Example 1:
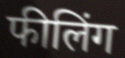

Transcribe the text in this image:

फीलिंग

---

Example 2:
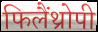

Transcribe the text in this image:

फिलैंथ्रोपी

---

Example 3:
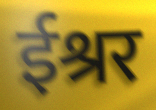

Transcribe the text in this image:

ईश्रर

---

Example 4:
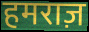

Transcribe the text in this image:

हमराज़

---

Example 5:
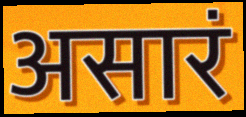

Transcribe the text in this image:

असारं